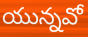
యున్నవో